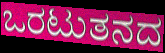
ಒರಟುತನದ